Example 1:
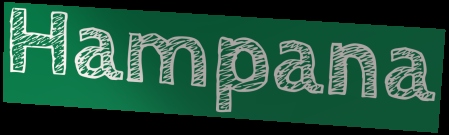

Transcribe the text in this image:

Hampana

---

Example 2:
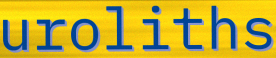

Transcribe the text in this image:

uroliths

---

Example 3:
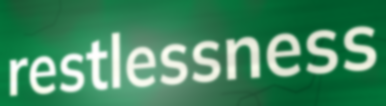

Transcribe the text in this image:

restlessness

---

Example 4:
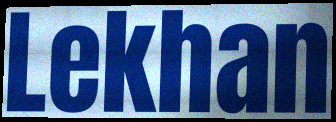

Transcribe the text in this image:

Lekhan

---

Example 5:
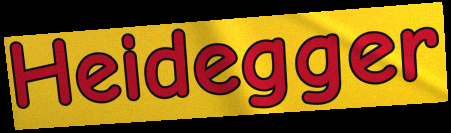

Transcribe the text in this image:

Heidegger